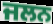
ਜਲਨ